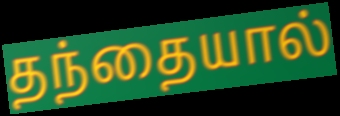
தந்தையால்